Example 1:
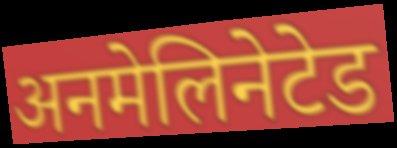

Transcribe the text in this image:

अनमेलिनेटेड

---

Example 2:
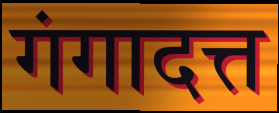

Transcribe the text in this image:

गंगादत्त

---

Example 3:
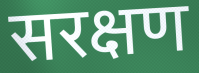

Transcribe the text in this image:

सरक्षण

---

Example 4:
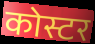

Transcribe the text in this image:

कोस्टर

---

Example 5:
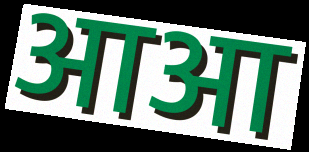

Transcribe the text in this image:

आआ